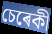
চেৰেকী